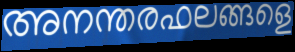
അനന്തരഫലങ്ങളെ